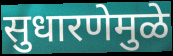
सुधारणेमुळे